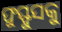
ଫୁସ୍ଫୁସକୁ